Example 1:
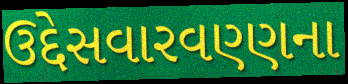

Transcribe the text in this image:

ઉદ્દેસવારવણ્ણના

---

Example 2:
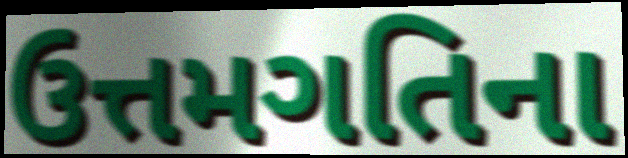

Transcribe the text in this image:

ઉત્તમગતિના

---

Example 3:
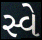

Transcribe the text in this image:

સ્વે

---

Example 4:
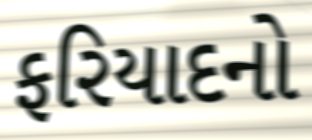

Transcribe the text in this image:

ફરિયાદનો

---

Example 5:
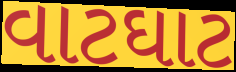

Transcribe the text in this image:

વાટઘાટ